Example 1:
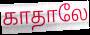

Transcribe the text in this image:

காதாலே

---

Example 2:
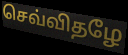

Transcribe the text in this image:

செவ்விதழே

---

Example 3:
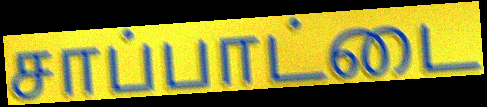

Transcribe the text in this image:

சாப்பாட்டை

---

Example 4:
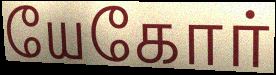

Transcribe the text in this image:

யேகோர்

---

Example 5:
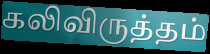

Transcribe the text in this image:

கலிவிருத்தம்